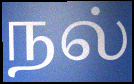
நல்